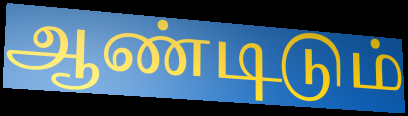
ஆண்டிடும்